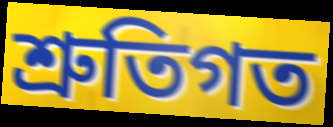
শ্রুতিগত